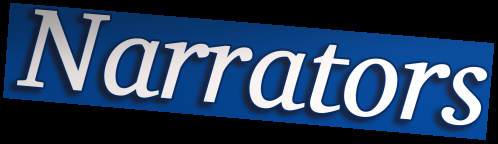
Narrators